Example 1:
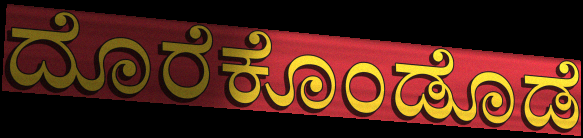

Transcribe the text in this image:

ದೊರೆಕೊಂಡೊಡೆ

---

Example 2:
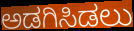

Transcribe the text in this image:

ಅಡಗಿಸಿಡಲು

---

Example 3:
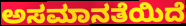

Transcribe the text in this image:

ಅಸಮಾನತೆಯಿದೆ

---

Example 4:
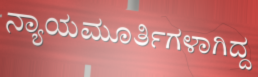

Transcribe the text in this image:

ನ್ಯಾಯಮೂರ್ತಿಗಳಾಗಿದ್ದ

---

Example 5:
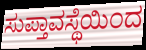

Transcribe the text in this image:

ಸುಪ್ತಾವಸ್ಥೆಯಿಂದ